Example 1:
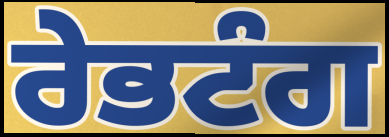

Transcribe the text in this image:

ਰੇਭਟੰਗ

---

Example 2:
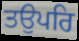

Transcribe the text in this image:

ਤਉਪਰਿ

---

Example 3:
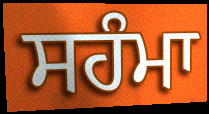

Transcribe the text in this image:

ਸਹੰਮਾ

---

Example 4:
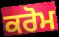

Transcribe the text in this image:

ਕਰੋਮ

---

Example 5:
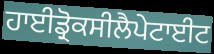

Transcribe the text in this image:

ਹਾਈਡ੍ਰੋਕਸੀਲੈਪੇਟਾਈਟ